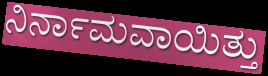
ನಿರ್ನಾಮವಾಯಿತ್ತು